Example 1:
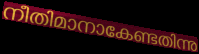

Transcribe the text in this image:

നീതിമാനാകേണ്ടതിന്നു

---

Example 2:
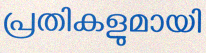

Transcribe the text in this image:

പ്രതികളുമായി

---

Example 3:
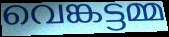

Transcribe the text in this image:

വെങ്കട്ടമ്മ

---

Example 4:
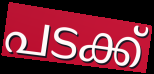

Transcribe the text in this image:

പടക്ക്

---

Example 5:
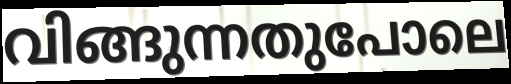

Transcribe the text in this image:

വിങ്ങുന്നതുപോലെ